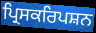
ਪ੍ਰਿਸਕਰਿਪਸ਼ਨ